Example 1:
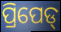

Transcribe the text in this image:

ପ୍ରିପେଡ୍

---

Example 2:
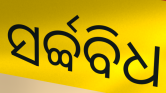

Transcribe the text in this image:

ସର୍ବ୍ବବିଧ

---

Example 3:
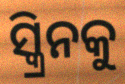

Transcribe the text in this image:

ସ୍କ୍ରିନକୁ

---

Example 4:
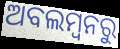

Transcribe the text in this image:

ଅବଲମ୍ବନରୁ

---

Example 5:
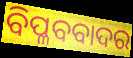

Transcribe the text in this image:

ବିପ୍ଳବବାଦର